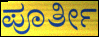
ಪೂರ್ತೀ